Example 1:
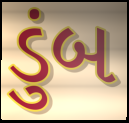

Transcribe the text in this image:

ડુંબ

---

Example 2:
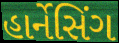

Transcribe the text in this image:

હાર્નેસિંગ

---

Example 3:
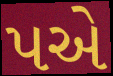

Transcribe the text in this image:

પએ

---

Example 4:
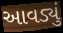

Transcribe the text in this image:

આવડ્યું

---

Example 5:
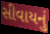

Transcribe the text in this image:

સીવાયનું